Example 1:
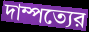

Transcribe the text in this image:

দাম্পত্যের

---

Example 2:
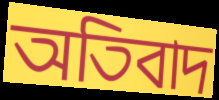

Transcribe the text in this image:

অতিবাদ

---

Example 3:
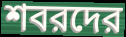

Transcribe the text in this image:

শবরদের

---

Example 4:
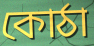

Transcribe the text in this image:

কোঠা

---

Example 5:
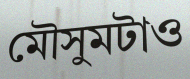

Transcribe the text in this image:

মৌসুমটাও